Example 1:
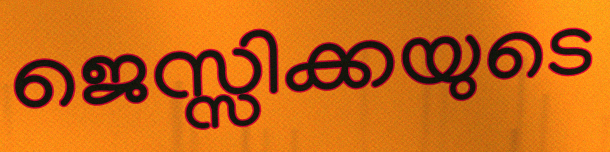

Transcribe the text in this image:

ജെസ്സിക്കയുടെ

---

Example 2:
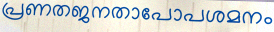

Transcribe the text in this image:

പ്രണതജനതാപോപശമനം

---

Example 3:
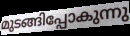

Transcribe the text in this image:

മുടങ്ങിപ്പോകുന്നു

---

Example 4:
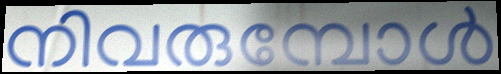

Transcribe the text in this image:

നിവരുമ്പോൾ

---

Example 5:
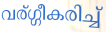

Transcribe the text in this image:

വര്ഗ്ഗീകരിച്ച്